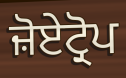
ਜ਼ੋਏਟ੍ਰੋਪ